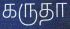
கருதா